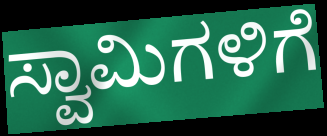
ಸ್ವಾಮಿಗಳಿಗೆ